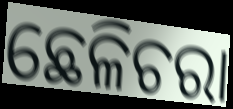
ଛେଳିଚରା